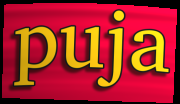
puja